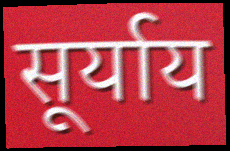
सूर्याय